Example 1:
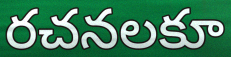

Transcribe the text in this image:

రచనలకూ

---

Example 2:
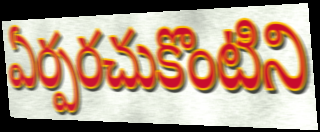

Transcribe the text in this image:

ఏర్పరచుకొంటిని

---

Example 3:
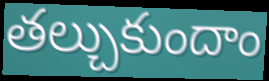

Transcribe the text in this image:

తల్చుకుందాం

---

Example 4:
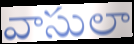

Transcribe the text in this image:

వాసులా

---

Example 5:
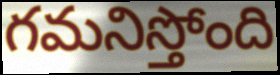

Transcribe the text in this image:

గమనిస్తోంది